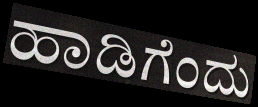
ಹಾಡಿಗೆಂದು